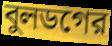
বুলডগের